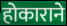
होकाराने